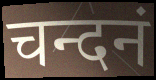
चन्दनं